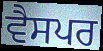
ਵੈਸਪਰ